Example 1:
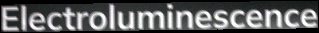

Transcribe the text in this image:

Electroluminescence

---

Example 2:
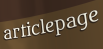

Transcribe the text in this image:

articlepage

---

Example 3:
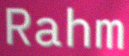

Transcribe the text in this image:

Rahm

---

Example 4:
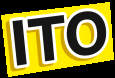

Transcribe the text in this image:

ITO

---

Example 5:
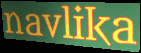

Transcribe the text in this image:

navlika